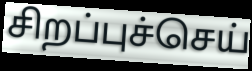
சிறப்புச்செய்